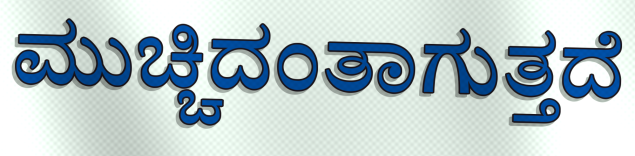
ಮುಚ್ಚಿದಂತಾಗುತ್ತದೆ